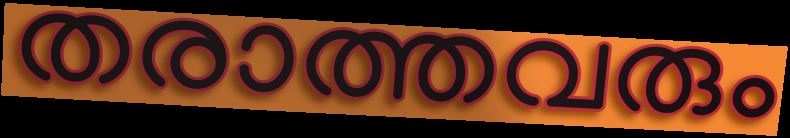
തരാത്തവരും